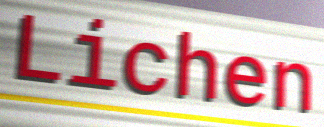
Lichen